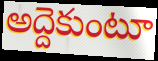
అద్దెకుంటూ